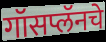
गॉसप्लॅनचे